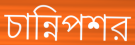
চান্নিপশর